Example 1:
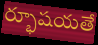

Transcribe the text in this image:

ర్భూషయతే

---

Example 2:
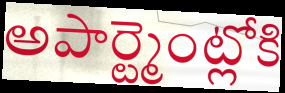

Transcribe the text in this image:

అపార్ట్మెంట్లోకి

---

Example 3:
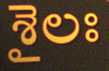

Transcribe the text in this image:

శైలః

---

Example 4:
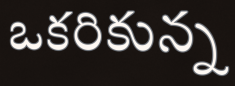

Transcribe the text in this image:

ఒకరికున్న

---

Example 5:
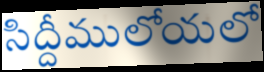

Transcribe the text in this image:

సిద్దీములోయలో